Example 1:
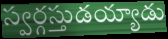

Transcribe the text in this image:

స్వర్గస్తుడయ్యాడు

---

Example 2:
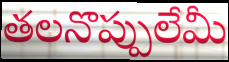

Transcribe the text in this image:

తలనొప్పులేమీ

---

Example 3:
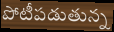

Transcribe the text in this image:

పోటీపడుతున్న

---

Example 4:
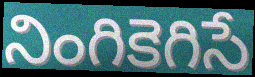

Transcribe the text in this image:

నింగికెగిసే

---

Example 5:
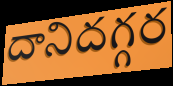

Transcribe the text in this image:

దానిదగ్గర